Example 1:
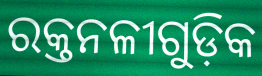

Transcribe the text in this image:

ରକ୍ତନଳୀଗୁଡ଼ିକ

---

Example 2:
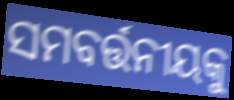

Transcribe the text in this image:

ସମବର୍ତ୍ତନୀୟକୁ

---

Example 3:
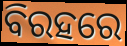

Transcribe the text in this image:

ବିରହରେ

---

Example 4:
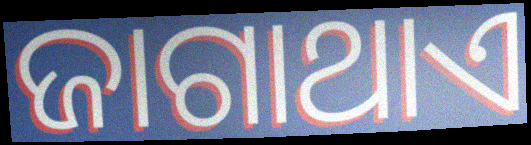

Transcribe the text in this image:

ଜାଗାଥାଏ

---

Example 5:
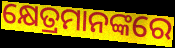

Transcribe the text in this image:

କ୍ଷେତ୍ରମାନଙ୍କରେ